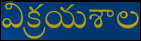
విక్రయశాల